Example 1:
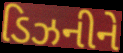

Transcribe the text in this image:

ડિઝનીને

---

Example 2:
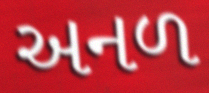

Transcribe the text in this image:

અનળ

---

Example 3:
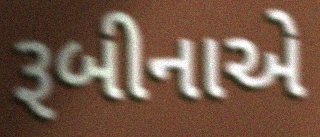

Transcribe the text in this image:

રૂબીનાએ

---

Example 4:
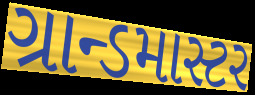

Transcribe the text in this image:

ગ્રાન્ડમાસ્ટર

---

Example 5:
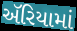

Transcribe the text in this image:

ઍરિયામાં